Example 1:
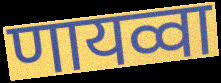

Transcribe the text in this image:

णायव्वा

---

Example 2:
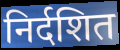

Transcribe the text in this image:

निर्दशित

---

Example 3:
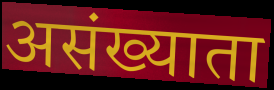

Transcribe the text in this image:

असंख्याता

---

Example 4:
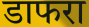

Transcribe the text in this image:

डाफरा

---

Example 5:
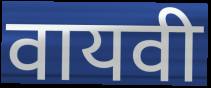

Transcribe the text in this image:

वायवी